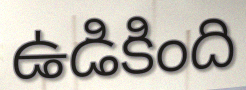
ఉడికింది